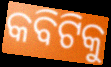
କବିଟିକୁ